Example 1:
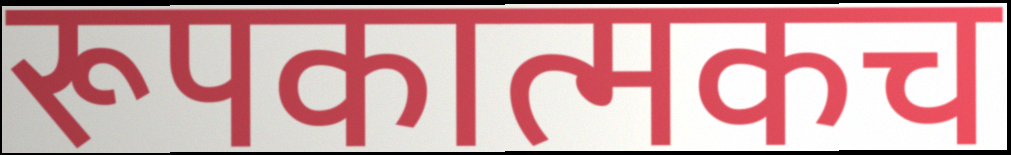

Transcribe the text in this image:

रूपकात्मकच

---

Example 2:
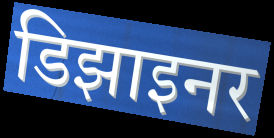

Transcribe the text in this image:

डिझाइनर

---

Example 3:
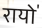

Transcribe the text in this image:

रायो॑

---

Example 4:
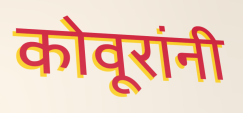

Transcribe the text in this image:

कोवूरांनी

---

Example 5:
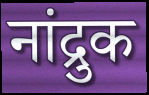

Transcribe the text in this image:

नांद्रुक